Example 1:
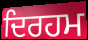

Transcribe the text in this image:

ਦਿਰਹਮ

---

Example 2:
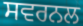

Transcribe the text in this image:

ਸਵਰਨਲ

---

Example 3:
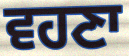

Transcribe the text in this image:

ਵਹਣਾ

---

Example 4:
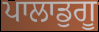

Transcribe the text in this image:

ਪਾਲਾਡੁਗੂ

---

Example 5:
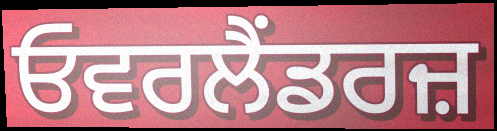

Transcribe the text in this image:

ਓਵਰਲੈਂਡਰਜ਼